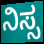
ನಿಸ್ಸ